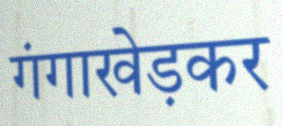
गंगाखेड़कर